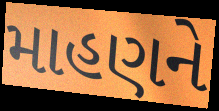
માહણને